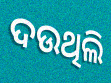
ଦଉଥିଲି